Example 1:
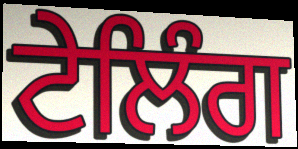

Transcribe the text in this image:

ਟੇਲਿੰਗ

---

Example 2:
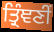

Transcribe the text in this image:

ਤ੍ਰਿੰਞਣੀਂ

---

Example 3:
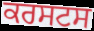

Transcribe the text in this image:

ਕਰਸਟਸ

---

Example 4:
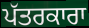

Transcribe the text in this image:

ਪੱਤਰਕਾਰਾ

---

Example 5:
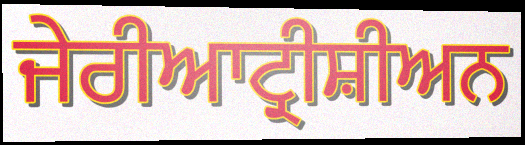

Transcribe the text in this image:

ਜੇਰੀਆਟ੍ਰੀਸ਼ੀਅਨ